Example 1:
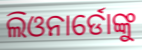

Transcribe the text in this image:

ଲିଓନାର୍ଡୋଙ୍କୁ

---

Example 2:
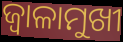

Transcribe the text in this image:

ଜ୍ୱାଳାମୁଖୀ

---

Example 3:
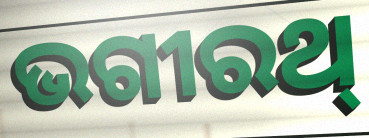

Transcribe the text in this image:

ଭଗୀରଥ୍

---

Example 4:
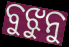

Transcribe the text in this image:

ବୁଝୁନୁ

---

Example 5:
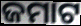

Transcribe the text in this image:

ଜମାଟ